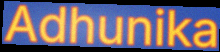
Adhunika